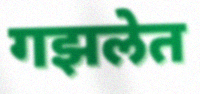
गझलेत